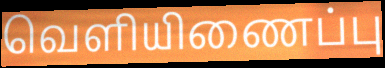
வெளியிணைப்பு